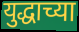
युद्धाच्या